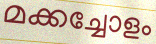
മക്കച്ചോളം